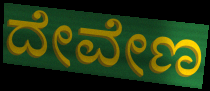
ದೇವೇಣ